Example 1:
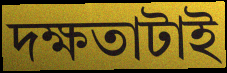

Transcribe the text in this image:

দক্ষতাটাই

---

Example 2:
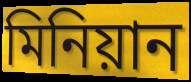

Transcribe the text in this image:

মিনিয়ান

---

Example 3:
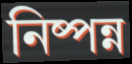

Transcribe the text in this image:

নিষ্পন্ন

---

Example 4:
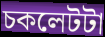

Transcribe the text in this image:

চকলেটটা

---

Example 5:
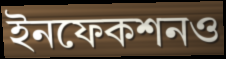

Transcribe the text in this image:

ইনফেকশনও